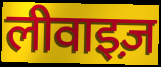
लीवाइज़